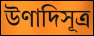
উণাদিসূত্র